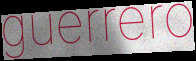
guerrero